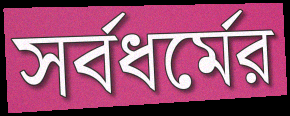
সর্বধর্মের